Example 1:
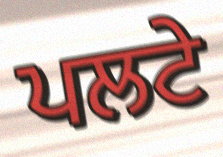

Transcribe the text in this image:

ਪਲਟੇ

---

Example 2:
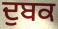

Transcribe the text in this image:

ਦੁਬਕ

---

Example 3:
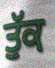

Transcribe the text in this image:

ਤੁੱਕ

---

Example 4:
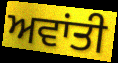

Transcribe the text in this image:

ਅਵਾਂਤੀ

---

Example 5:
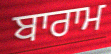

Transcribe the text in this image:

ਬਾਰਾਮ